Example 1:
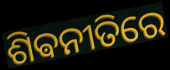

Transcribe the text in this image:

ଶିଵନୀତିରେ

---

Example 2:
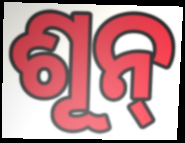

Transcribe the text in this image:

ଶୂନ୍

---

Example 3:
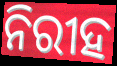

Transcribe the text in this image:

ନିରୀହ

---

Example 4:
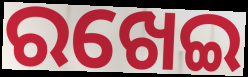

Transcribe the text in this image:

ରଖେଇ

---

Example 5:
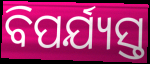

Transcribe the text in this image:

ବିପର୍ଯ୍ୟସ୍ତ